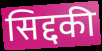
सिद्दकी